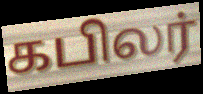
கபிலர்